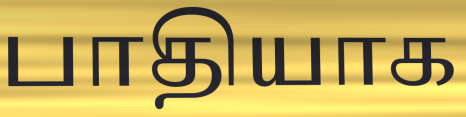
பாதியாக